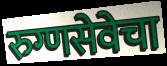
रुग्णसेवेचा